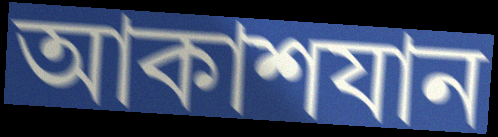
আকাশযান